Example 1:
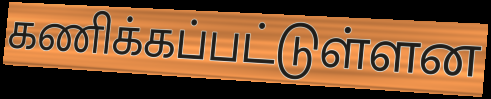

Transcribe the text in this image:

கணிக்கப்பட்டுள்ளன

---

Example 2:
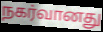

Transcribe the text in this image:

நகர்வானது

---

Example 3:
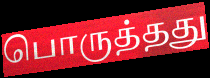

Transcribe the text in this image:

பொருத்தது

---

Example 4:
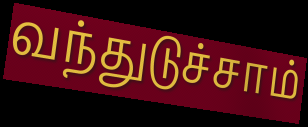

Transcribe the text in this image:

வந்துடுச்சாம்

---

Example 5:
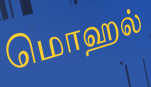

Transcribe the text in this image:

மொஹல்